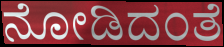
ನೋಡಿದಂತೆ